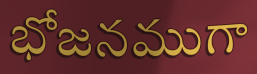
భోజనముగా